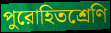
পুরোহিতশ্রেণি